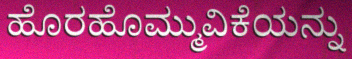
ಹೊರಹೊಮ್ಮುವಿಕೆಯನ್ನು